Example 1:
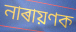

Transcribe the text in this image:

নাৰায়ণক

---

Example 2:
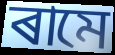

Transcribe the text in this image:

ৰামে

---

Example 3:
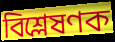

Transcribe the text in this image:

বিশ্লেষণক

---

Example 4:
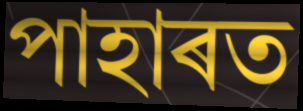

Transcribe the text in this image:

পাহাৰত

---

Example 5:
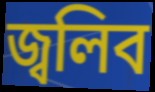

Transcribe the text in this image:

জ্বলিব